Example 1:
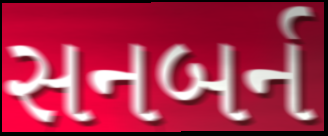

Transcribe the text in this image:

સનબર્ન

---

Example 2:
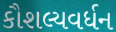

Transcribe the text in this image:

કૌશલ્યવર્ધન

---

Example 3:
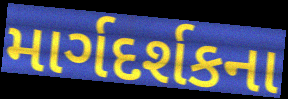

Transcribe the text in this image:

માર્ગદર્શકના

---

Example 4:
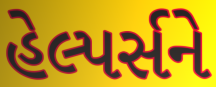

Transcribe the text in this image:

હેલ્પર્સને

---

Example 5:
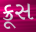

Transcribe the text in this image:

ક્રૂસ